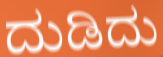
ದುಡಿದು